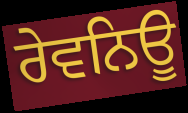
ਰੇਵਨਿਊ